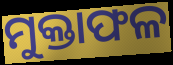
ମୁକ୍ତାଫଳ